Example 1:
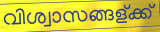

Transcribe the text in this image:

വിശ്വാസങ്ങള്ക്ക്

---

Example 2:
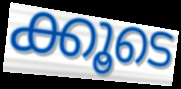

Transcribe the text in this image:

ക്കൂടെ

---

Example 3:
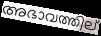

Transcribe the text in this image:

അഭാവത്തില്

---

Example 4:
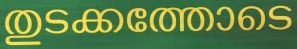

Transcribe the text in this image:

തുടക്കത്തോടെ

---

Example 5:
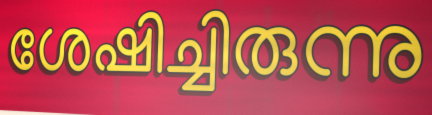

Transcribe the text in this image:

ശേഷിച്ചിരുന്നു